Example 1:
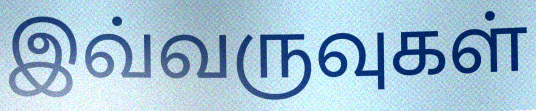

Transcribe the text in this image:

இவ்வருவுகள்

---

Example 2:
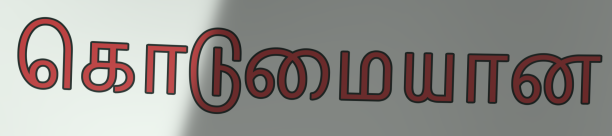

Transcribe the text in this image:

கொடுமையான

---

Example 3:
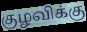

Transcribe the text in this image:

குழவிக்கு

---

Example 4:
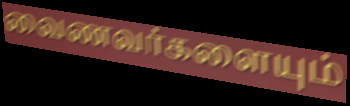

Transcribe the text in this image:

வைணவர்களையும்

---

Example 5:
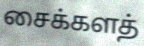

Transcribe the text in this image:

சைக்களத்